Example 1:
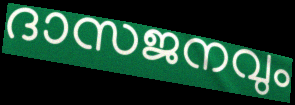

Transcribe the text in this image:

ദാസജനവും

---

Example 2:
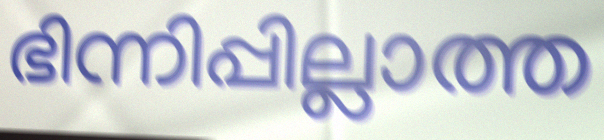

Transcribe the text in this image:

ഭിന്നിപ്പില്ലാത്ത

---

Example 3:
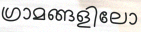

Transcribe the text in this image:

ഗ്രാമങ്ങളിലോ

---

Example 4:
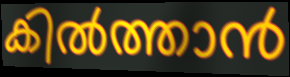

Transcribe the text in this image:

കിൽത്താൻ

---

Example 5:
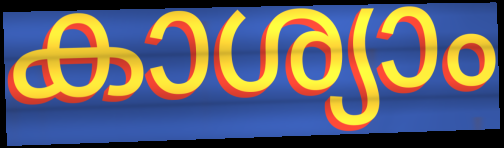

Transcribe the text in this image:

കാശ്യാം